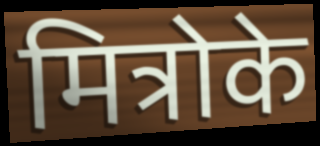
मित्रोके